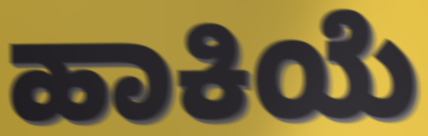
ಹಾಕಿಯೆ